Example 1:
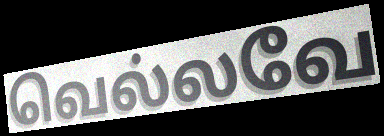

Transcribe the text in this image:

வெல்லவே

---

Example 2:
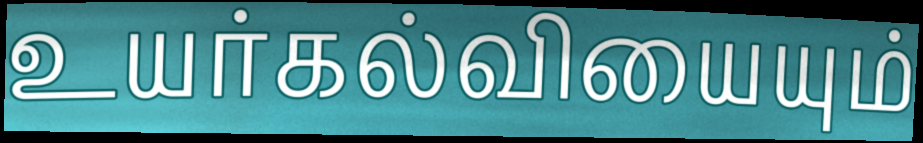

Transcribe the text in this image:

உயர்கல்வியையும்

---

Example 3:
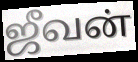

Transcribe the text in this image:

ஜீவன்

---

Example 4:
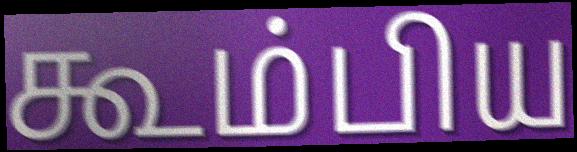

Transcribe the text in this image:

கூம்பிய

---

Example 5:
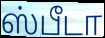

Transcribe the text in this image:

ஸ்பீடா